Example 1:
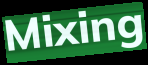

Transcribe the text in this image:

Mixing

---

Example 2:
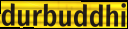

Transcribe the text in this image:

durbuddhi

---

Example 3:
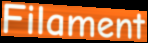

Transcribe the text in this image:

Filament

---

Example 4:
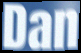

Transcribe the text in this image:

Dan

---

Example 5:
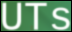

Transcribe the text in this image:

UTs